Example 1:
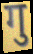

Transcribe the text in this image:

गु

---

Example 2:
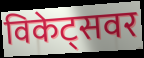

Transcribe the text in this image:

विकेट्सवर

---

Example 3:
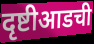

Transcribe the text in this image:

दृष्टीआडची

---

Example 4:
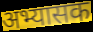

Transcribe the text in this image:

अभ्यासक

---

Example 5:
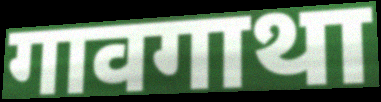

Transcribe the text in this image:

गावगाथा